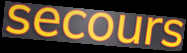
secours